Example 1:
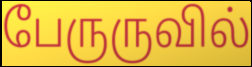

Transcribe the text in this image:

பேருருவில்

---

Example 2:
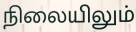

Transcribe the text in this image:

நிலையிலும்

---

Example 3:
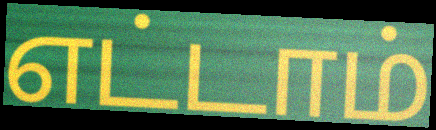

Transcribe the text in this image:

எட்டாம்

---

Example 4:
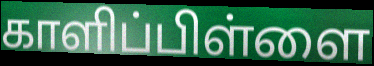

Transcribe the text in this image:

காளிப்பிள்ளை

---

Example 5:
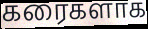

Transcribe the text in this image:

கரைகளாக